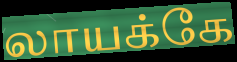
லாயக்கே